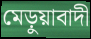
মেড়ুয়াবাদী